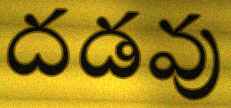
దడవు